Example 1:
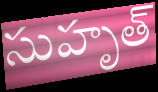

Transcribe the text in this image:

సుహృత్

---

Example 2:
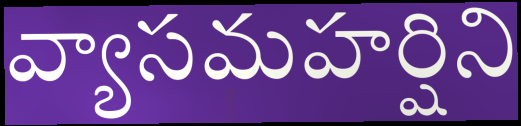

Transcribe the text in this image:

వ్యాసమహర్షిని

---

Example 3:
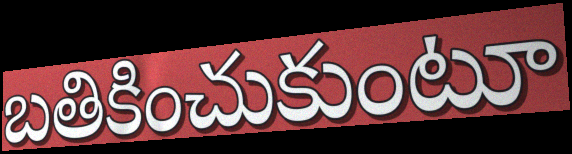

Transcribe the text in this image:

బతికించుకుంటూ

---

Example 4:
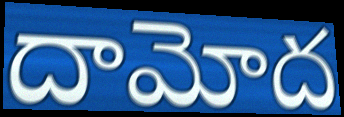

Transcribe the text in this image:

దామోద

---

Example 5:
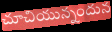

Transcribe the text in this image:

చూచియున్నందున